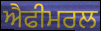
ਐਫੀਮਰਲ